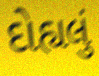
દોહ્યલું